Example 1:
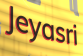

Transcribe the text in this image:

Jeyasri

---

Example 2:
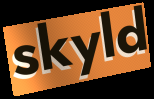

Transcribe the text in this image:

skyld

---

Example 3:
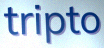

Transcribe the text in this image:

tripto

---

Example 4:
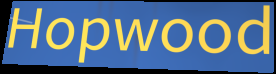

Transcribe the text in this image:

Hopwood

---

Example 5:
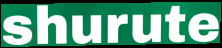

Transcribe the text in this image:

shurute